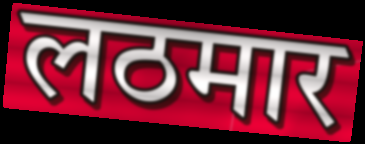
लठमार